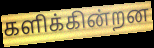
களிக்கின்றன